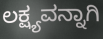
ಲಕ್ಷ್ಯವನ್ನಾಗಿ